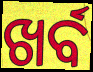
ଖର୍ବ